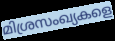
മിശ്രസംഖ്യകളെ